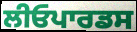
ਲੀਓਪਾਰਡਸ